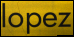
lopez